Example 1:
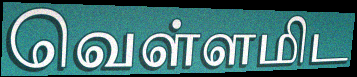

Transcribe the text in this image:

வெள்ளமிட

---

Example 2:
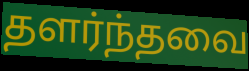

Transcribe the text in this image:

தளர்ந்தவை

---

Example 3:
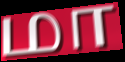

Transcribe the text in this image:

மா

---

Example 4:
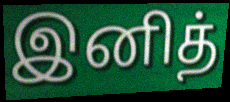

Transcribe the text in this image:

இனித்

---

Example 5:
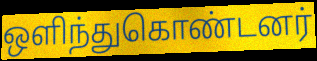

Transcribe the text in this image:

ஒளிந்துகொண்டனர்